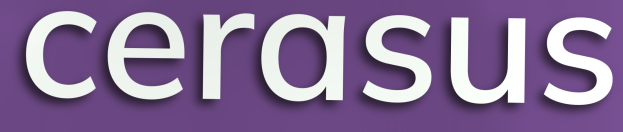
cerasus